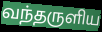
வந்தருளிய